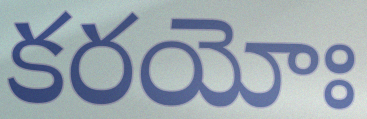
కరయోః